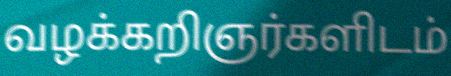
வழக்கறிஞர்களிடம்